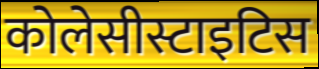
कोलेसीस्टाइटिस